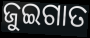
ଜୁଇଗାତ